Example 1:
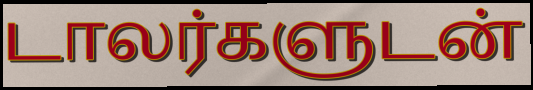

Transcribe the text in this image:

டாலர்களுடன்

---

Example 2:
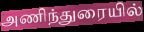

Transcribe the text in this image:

அணிந்துரையில்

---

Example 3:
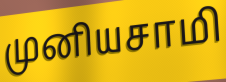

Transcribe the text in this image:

முனியசாமி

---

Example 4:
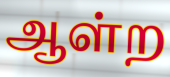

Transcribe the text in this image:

ஆள்ற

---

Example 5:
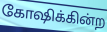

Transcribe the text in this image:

கோஷிக்கின்ற